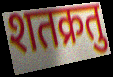
शतक्रतु